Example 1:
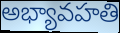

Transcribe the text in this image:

అభ్యావహతి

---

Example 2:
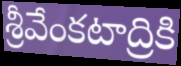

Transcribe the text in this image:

శ్రీవేంకటాద్రికి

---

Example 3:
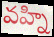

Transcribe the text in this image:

వహ్ని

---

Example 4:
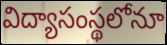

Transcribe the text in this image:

విద్యాసంస్థలోనూ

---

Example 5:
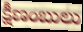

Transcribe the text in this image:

క్షీణంబులు